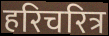
हरिचरित्र